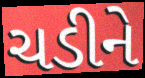
ચડીને